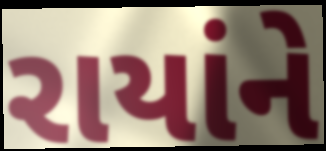
રાયાંને